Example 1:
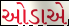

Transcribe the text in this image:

ઓડાએ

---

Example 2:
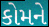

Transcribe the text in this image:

કોમને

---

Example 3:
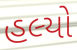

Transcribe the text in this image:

હલ્યો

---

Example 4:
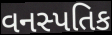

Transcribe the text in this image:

વનસ્પતિક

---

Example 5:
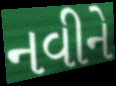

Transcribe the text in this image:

નવીને